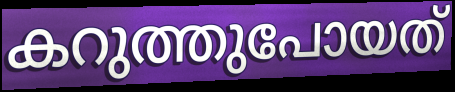
കറുത്തുപോയത്